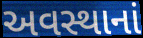
અવસ્થાનાં